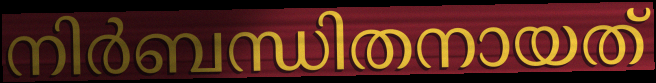
നിർബന്ധിതനായത്